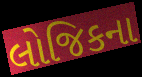
લોજિકના